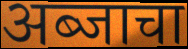
अब्जाचा